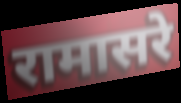
रामासरे